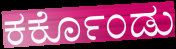
ಕರ್ಕೊಂಡು